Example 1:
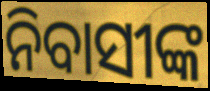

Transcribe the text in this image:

ନିବାସୀଙ୍କ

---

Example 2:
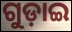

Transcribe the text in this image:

ଗୁଡ଼ାଇ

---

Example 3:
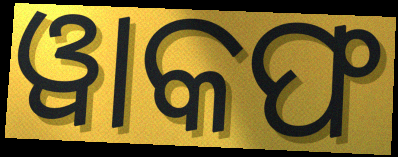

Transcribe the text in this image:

ୱାକଫ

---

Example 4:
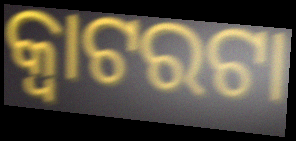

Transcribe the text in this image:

କ୍ଵାଟରଟା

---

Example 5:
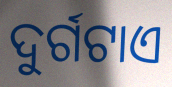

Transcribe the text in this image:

ଦୁର୍ଗଟାଏ